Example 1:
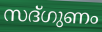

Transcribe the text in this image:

സദ്ഗുണം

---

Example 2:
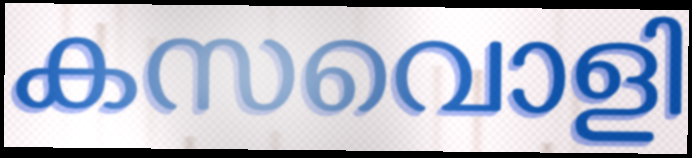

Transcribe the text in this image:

കസവൊളി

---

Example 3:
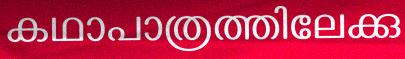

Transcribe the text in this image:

കഥാപാത്രത്തിലേക്കു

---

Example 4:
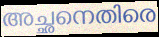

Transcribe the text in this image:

അച്ഛനെതിരെ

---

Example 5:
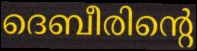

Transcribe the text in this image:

ദെബീരിന്റെ